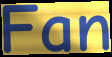
Fan